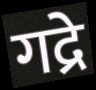
गद्रे